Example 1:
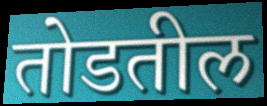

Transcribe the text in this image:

तोडतील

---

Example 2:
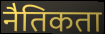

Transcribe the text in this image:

नैतिकता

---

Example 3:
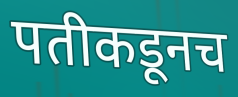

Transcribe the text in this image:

पतीकडूनच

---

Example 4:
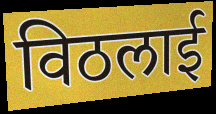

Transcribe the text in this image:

विठलाई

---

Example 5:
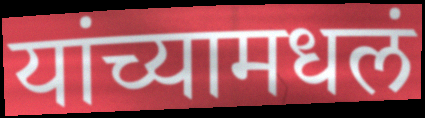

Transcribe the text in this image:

यांच्यामधलं